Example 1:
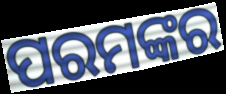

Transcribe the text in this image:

ପରମଙ୍କର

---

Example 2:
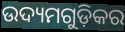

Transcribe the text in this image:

ଉଦ୍ୟମଗୁଡ଼ିକର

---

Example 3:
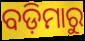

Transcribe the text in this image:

ବଡ଼ିମାରୁ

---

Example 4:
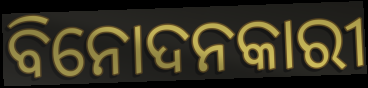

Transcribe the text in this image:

ବିନୋଦନକାରୀ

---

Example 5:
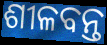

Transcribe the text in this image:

ଶୀଳବନ୍ତ